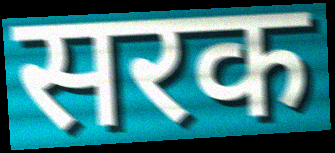
सरक